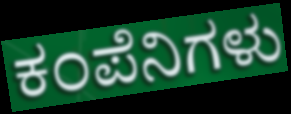
ಕಂಪೆನಿಗಳು